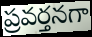
ప్రవర్తనగా